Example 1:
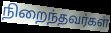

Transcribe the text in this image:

நிறைந்தவர்கள்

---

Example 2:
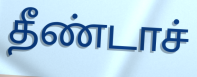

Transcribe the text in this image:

தீண்டாச்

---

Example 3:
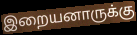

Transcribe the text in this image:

இறையனாருக்கு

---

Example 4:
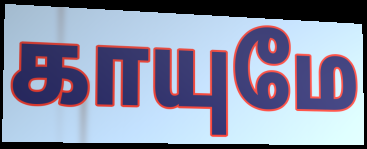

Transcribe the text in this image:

காயுமே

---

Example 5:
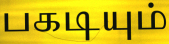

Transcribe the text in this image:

பகடியும்